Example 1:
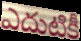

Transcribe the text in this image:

ఎదుటికీ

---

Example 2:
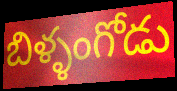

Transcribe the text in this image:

బిళ్ళంగోడు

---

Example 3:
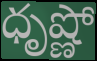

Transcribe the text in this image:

ధృష్ణో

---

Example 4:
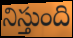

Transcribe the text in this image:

నిస్తుంది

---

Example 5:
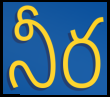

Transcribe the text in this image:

నీర